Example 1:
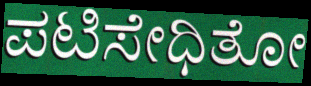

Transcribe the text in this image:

ಪಟಿಸೇಧಿತೋ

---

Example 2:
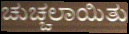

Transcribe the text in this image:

ಚುಚ್ಚಲಾಯಿತು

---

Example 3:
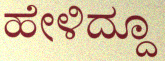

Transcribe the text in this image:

ಹೇಳಿದ್ದೂ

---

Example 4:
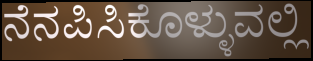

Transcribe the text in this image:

ನೆನಪಿಸಿಕೊಳ್ಳುವಲ್ಲಿ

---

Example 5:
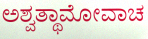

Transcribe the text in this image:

ಅಶ್ವತ್ಥಾಮೋವಾಚ